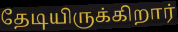
தேடியிருக்கிறார்